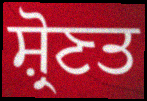
ਸ਼੍ਰੋਣਤ